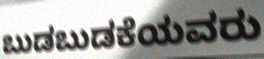
ಬುಡಬುಡಕೆಯವರು